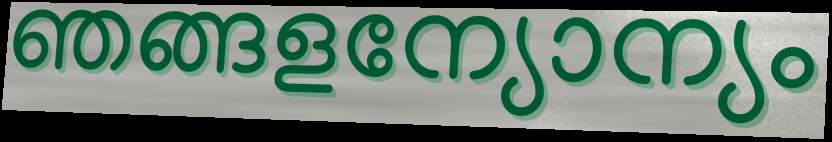
ഞങ്ങളന്യോന്യം